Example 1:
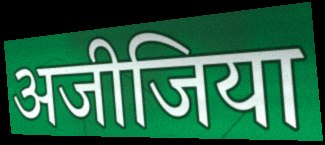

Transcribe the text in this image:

अजीजिया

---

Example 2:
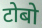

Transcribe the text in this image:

टोबो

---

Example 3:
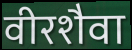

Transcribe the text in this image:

वीरशैवा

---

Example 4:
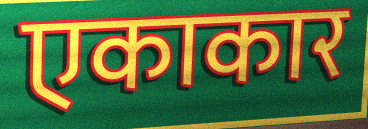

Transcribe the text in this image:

एकाकार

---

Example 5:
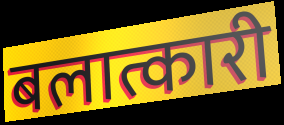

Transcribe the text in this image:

बलात्कारी